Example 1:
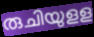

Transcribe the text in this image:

രുചിയുളള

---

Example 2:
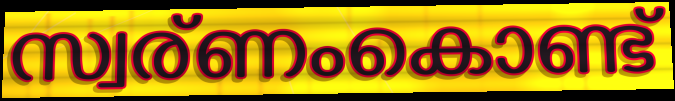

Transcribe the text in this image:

സ്വര്ണംകൊണ്ട്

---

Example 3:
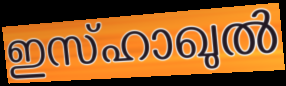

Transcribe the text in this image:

ഇസ്ഹാഖുൽ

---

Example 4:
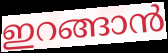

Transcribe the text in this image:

ഇറങ്ങാൻ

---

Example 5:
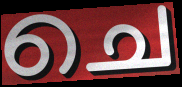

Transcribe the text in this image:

ചെ